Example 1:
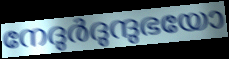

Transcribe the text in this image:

നേദുർദുന്ദുഭയോ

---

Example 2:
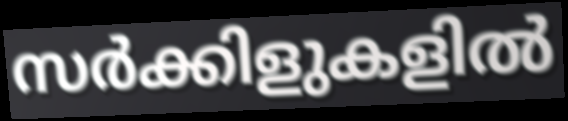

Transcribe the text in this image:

സർക്കിളുകളിൽ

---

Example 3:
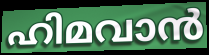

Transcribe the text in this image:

ഹിമവാൻ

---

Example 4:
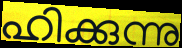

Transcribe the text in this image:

ഹിക്കുന്നു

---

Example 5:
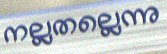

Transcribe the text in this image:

നല്ലതല്ലെന്നു